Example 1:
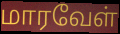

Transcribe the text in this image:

மாரவேள்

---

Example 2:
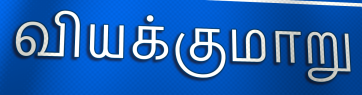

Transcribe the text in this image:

வியக்குமாறு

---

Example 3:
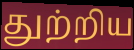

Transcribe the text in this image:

துற்றிய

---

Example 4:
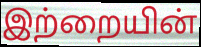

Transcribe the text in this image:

இற்றையின்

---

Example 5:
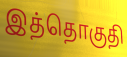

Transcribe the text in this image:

இத்தொகுதி